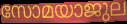
സോമയാജുല